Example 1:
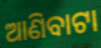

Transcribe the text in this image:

ଆଣିବାଟା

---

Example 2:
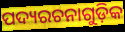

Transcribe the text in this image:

ପଦ୍ୟରଚନାଗୁଡ଼ିକ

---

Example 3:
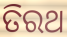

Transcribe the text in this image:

ତିରଥ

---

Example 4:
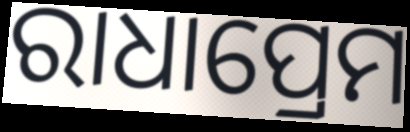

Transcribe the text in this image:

ରାଧାପ୍ରେମ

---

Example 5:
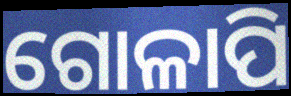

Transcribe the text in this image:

ଗୋଳାପି